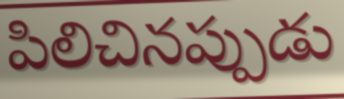
పిలిచినప్పుడు